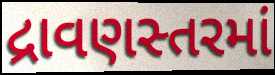
દ્રાવણસ્તરમાં